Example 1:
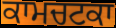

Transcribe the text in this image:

ਕਾਮਚਟਕਾ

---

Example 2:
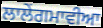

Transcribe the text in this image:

ਲਾਲੇਂਗਮਾਵੀਆ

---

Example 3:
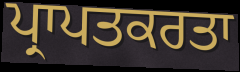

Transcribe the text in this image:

ਪ੍ਰਾਪਤਕਰਤਾ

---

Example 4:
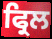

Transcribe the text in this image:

ਫ੍ਰਿਲ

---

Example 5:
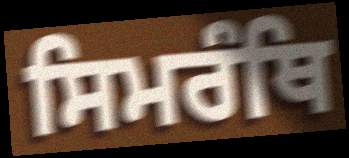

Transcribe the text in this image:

ਸਿਮਰੰਥਿ